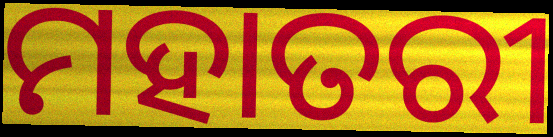
ମହାତରୀ